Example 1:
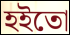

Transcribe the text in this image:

হইতো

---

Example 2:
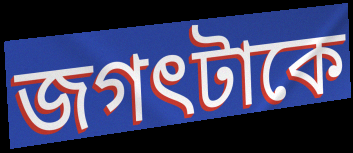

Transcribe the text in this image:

জগৎটাকে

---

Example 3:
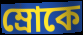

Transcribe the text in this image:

ম্রোকে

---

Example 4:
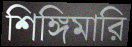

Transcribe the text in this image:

শিঙ্গিমারি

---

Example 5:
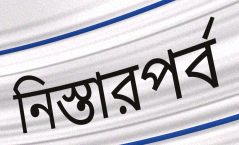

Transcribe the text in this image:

নিস্তারপর্ব